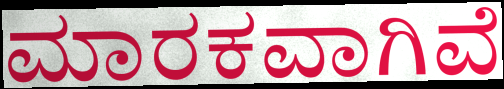
ಮಾರಕವಾಗಿವೆ